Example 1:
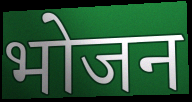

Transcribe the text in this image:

भोजन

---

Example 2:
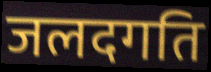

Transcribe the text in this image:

जलदगति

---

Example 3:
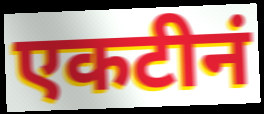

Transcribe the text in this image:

एकटीनं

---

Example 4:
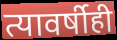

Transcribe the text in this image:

त्यावर्षीही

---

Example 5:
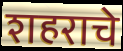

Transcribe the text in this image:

शहराचे